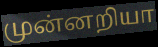
முன்னறியா